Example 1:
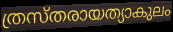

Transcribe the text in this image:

ത്രസ്തരായത്യാകുലം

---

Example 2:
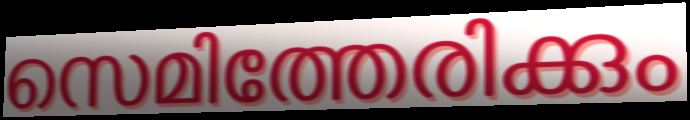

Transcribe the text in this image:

സെമിത്തേരിക്കും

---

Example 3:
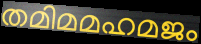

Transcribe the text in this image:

തമിമമഹമജം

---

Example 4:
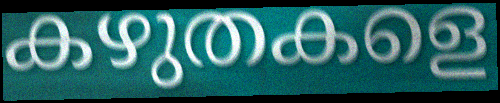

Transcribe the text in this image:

കഴുതകളെ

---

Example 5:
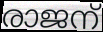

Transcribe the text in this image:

രാജന്